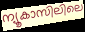
ന്യൂകാസിലിലെ